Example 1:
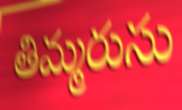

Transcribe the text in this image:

తిమ్మరుసు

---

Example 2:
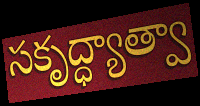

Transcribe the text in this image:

సకృద్ధ్యాత్వా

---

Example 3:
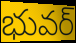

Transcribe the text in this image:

భువర్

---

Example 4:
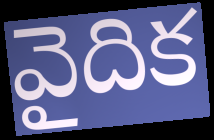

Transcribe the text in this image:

వైదిక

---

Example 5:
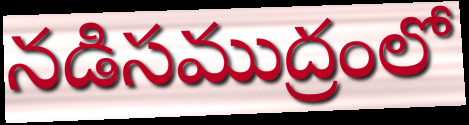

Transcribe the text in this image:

నడిసముద్రంలో